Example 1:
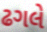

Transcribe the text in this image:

ઢગલે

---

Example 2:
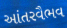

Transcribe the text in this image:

આંતરવૈભવ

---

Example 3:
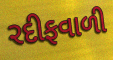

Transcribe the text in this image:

રદીફવાળી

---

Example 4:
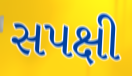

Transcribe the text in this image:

સપક્ષી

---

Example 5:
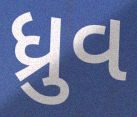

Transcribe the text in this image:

ધ્રુવ